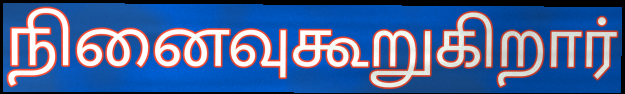
நினைவுகூறுகிறார்